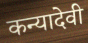
कन्यादेवी